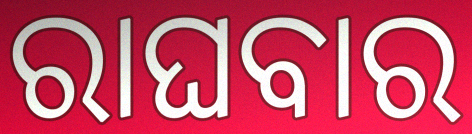
ରାଘବାର